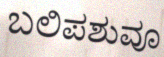
ಬಲಿಪಶುವೂ